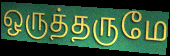
ஒருத்தருமே